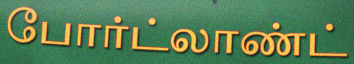
போர்ட்லாண்ட்